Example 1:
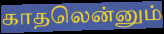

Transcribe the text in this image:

காதலென்னும்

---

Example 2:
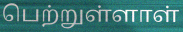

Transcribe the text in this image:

பெற்றுள்ளாள்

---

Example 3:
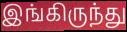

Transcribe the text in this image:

இங்கிருந்து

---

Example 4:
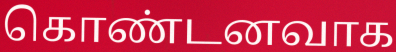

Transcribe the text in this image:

கொண்டனவாக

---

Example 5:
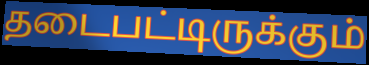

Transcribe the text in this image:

தடைபட்டிருக்கும்